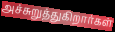
அச்சுறுத்துகிறார்கள்